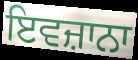
ਇਵਜ਼ਾਨਾ